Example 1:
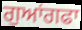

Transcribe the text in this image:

ਗੁਆਂਗਫਾ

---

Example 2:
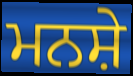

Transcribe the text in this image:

ਮਨਸ਼ੇ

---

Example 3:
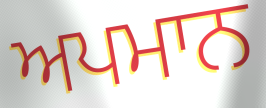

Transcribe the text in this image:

ਅਪਮਾਨ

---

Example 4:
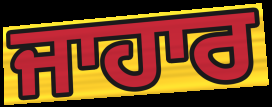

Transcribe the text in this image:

ਜਾਹਾਰ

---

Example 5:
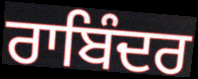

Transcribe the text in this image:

ਰਾਬਿੰਦਰ